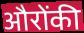
औरोंकी